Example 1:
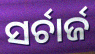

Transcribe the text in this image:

ସର୍ଚାର୍ଜ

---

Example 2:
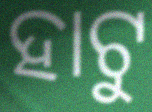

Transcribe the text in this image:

ହାଟୁ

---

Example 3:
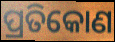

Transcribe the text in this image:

ପ୍ରତିକୋଣ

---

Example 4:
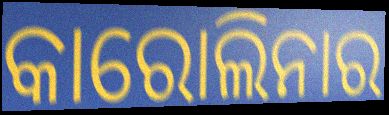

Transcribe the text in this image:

କାରୋଲିନାର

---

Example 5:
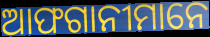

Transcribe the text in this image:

ଆଫଗାନୀମାନେ